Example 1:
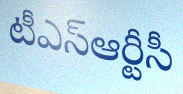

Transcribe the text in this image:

టీఎస్ఆర్టీసీ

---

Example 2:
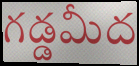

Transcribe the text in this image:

గడ్డమీద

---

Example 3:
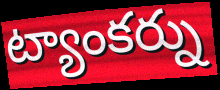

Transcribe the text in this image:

ట్యాంకర్ను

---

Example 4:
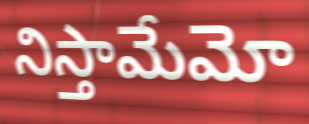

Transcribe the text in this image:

నిస్తామేమో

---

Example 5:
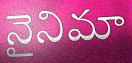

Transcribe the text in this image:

నైనిమా